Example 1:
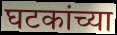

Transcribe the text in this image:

घटकांच्या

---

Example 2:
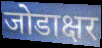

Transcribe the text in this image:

जोडाक्षर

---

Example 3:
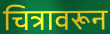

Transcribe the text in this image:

चित्रावरून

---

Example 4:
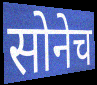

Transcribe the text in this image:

सोनेच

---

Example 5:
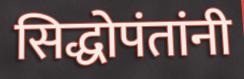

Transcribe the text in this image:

सिद्धोपंतांनी